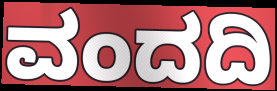
ವಂದದಿ